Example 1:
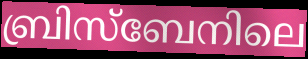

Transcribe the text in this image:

ബ്രിസ്ബേനിലെ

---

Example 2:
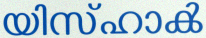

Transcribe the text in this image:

യിസ്ഹാൿ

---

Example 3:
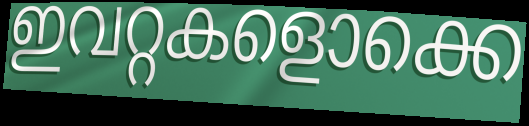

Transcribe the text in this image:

ഇവറ്റകളൊക്കെ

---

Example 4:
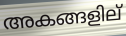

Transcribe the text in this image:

അകങ്ങളില്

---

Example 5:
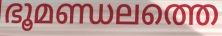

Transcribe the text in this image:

ഭൂമണ്ഡലത്തെ